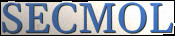
SECMOL